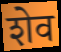
शेव